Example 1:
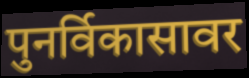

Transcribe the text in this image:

पुनर्विकासावर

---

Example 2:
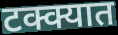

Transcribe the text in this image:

टक्क्यात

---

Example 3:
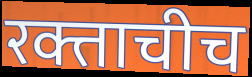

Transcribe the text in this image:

रक्ताचीच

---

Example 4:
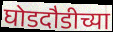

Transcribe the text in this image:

घोडदौडीच्या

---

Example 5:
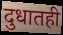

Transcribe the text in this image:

दुधातही